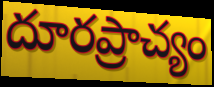
దూరప్రాచ్యం